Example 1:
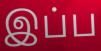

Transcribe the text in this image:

இப்ப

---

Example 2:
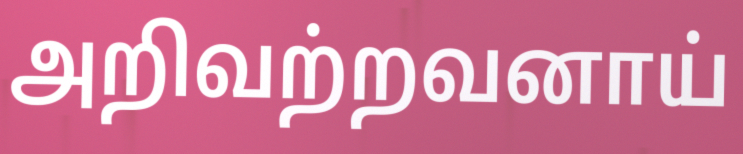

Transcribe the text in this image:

அறிவற்றவனாய்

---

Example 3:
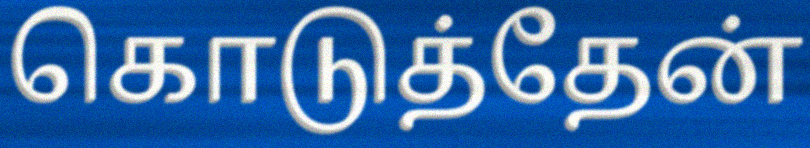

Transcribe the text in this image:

கொடுத்தேன்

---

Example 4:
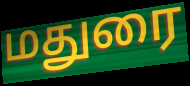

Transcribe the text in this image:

மதுரை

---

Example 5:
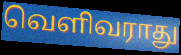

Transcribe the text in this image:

வெளிவராது